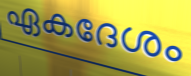
ഏകദേശം